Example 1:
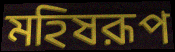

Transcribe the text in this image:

মহিষরূপ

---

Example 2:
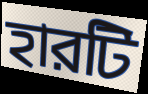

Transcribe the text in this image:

হারটি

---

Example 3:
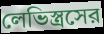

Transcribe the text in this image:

লেভিস্ত্রসের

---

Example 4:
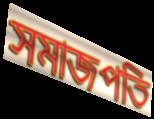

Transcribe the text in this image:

সমাজপতি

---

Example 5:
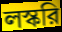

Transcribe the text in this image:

লস্করি